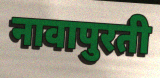
नावापुरती